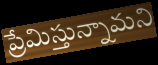
ప్రేమిస్తున్నామని